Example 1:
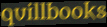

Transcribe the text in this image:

quillbooks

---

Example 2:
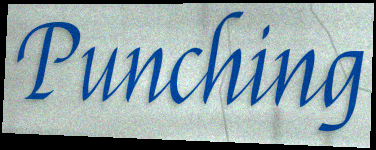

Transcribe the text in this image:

Punching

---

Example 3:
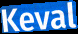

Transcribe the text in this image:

Keval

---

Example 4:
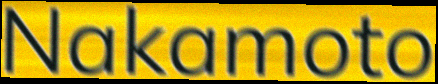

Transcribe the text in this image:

Nakamoto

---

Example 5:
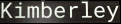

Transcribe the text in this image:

Kimberley